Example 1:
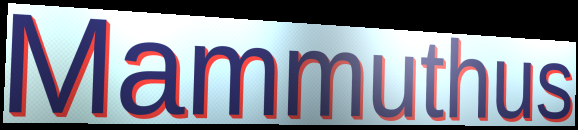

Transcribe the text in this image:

Mammuthus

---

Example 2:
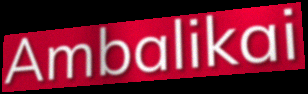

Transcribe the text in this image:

Ambalikai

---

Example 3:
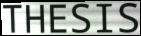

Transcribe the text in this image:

THESIS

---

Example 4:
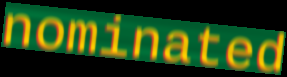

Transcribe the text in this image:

nominated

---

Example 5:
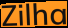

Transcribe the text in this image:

Zilha